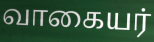
வாகையர்